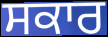
ਸਕਾਰ